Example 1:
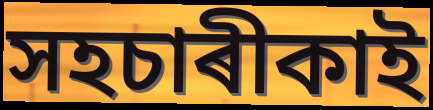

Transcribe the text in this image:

সহচাৰীকাই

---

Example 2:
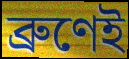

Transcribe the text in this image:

ব্ৰুণেই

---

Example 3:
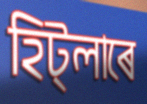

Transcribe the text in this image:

হিট্‌লাৰে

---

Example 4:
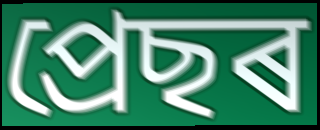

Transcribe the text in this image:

প্ৰেছৰ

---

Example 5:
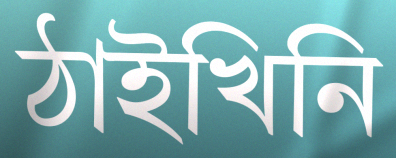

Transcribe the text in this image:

ঠাইখিনি